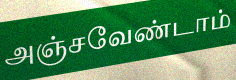
அஞ்சவேண்டாம்